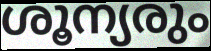
ശൂന്യരും